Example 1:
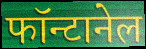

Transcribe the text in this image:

फॉन्टानेल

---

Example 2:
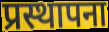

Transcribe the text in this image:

प्रस्थापना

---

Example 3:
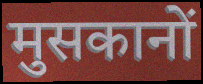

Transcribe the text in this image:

मुसकानों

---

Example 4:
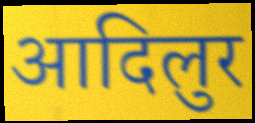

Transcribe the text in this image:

आदिलुर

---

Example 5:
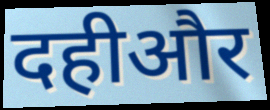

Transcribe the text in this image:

दहीऔर